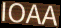
IOAA